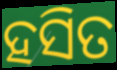
ହସିତ